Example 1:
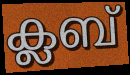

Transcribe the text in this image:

ക്ലബ്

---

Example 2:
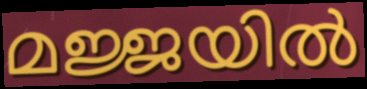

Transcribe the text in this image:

മജ്ജയിൽ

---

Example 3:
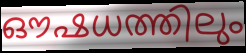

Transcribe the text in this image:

ഔഷധത്തിലും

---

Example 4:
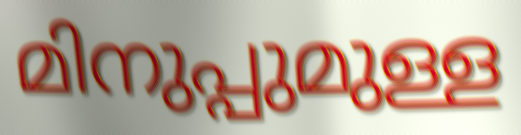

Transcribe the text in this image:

മിനുപ്പുമുള്ള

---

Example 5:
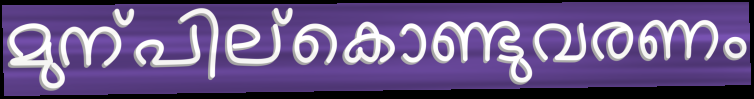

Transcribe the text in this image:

മുന്പില്കൊണ്ടുവരണം